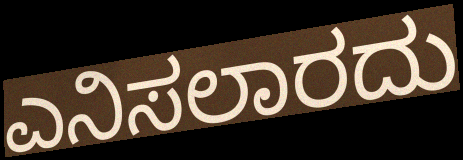
ಎನಿಸಲಾರದು